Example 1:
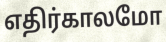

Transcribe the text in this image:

எதிர்காலமோ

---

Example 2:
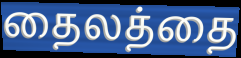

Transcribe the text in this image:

தைலத்தை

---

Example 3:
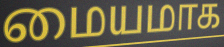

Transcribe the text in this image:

மையமாக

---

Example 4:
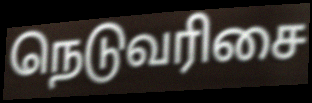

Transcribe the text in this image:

நெடுவரிசை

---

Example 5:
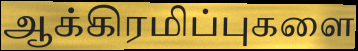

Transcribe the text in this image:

ஆக்கிரமிப்புகளை